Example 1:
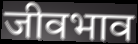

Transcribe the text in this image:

जीवभाव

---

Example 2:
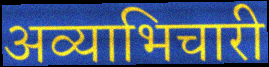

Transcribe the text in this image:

अव्याभिचारी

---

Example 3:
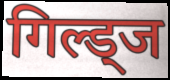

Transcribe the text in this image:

गिल्ड्ज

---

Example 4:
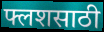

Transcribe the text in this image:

फ्लशसाठी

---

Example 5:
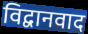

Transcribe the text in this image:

विद्वानवाद